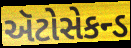
ઍટોસેકન્ડ